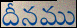
దీనము